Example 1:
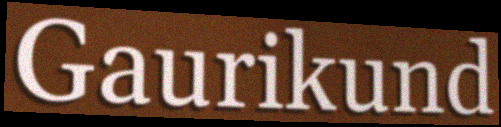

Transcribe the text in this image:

Gaurikund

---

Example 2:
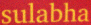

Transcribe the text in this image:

sulabha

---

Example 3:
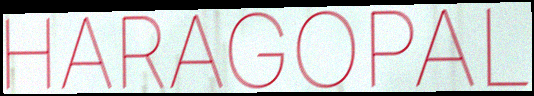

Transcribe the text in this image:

HARAGOPAL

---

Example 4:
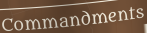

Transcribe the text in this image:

Commandments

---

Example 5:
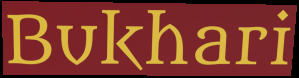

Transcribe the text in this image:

Bukhari